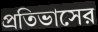
প্রতিভাসের